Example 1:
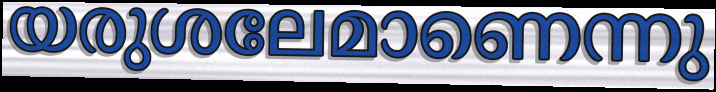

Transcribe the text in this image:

യരുശലേമാണെന്നു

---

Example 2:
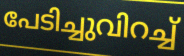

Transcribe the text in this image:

പേടിച്ചുവിറച്ച്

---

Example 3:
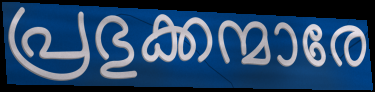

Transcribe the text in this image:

പ്രഭുക്കന്മാരേ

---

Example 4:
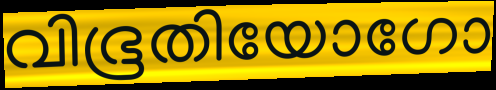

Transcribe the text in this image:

വിഭൂതിയോഗോ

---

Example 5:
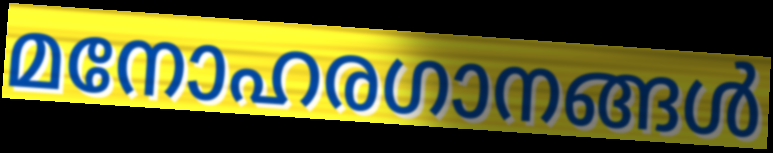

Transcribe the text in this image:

മനോഹരഗാനങ്ങൾ